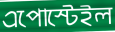
এপোস্টেইল